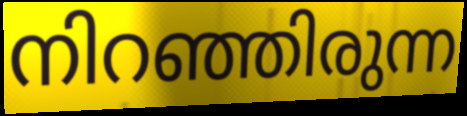
നിറഞ്ഞിരുന്ന